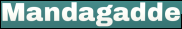
Mandagadde